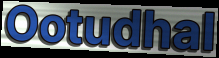
Ootudhal